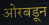
ओरबडून